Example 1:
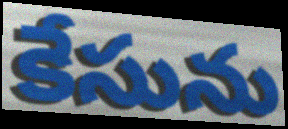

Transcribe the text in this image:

కేసును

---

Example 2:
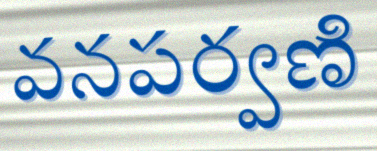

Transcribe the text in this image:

వనపర్వణి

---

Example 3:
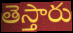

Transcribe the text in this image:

తెస్తారు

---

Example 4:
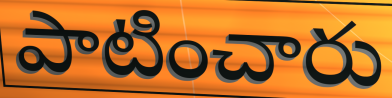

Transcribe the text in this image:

పాటించారు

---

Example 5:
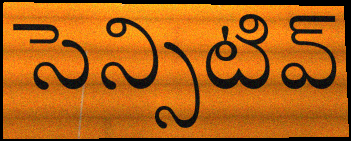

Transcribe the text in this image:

సెన్సిటివ్